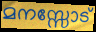
മനസ്സോട്